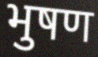
भुषण